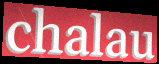
chalau